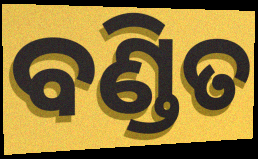
ବଣ୍ଡିତ